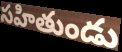
సహితుండు